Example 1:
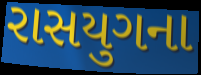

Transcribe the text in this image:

રાસયુગના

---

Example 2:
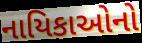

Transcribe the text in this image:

નાયિકાઓનો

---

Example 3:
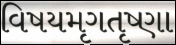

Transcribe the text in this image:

વિષયમૃગતૃષ્ણા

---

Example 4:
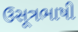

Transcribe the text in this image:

ઉસૂત્રભાષી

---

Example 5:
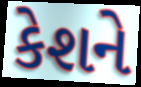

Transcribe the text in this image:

કેશને